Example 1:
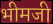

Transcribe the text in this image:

भीमजी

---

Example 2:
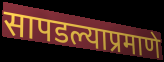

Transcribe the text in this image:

सापडल्याप्रमाणे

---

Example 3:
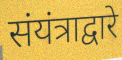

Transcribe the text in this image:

संयंत्राद्वारे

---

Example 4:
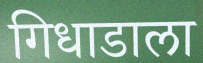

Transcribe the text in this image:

गिधाडाला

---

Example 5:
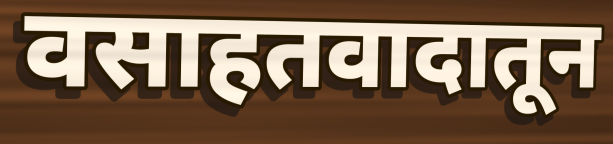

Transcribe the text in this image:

वसाहतवादातून